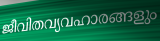
ജീവിതവ്യവഹാരങ്ങളും